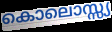
കൊലൊസ്സ്യ